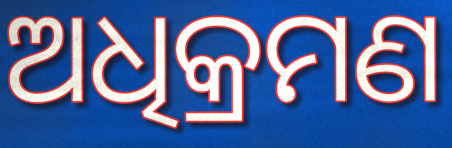
ଅଧିକ୍ରମଣ